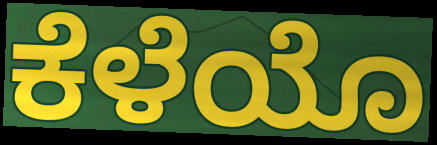
ಕೆಳೆಯೊ